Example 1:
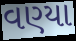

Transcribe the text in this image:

વણ્યા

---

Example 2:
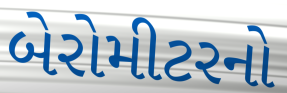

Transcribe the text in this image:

બેરોમીટરનો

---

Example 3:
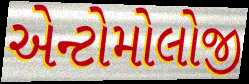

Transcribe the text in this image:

એન્ટોમોલોજી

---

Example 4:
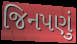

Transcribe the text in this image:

જિનપણું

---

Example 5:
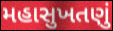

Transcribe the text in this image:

મહાસુખતણું